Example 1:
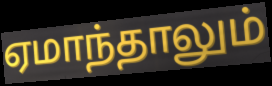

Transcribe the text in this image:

ஏமாந்தாலும்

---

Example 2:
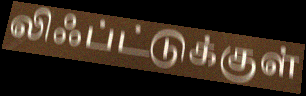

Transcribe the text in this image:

லிஃப்ட்டுக்குள்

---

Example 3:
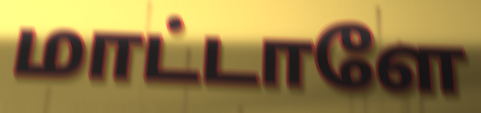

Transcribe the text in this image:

மாட்டாளே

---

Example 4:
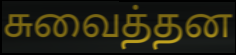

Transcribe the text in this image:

சுவைத்தன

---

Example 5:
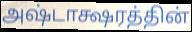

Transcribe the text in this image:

அஷ்டாக்ஷரத்தின்